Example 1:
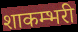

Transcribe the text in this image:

शाकम्भरी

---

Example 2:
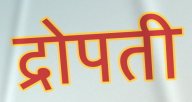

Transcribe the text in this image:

द्रोपती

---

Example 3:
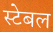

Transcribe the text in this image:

स्टेबल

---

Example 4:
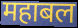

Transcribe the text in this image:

महाबल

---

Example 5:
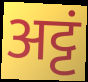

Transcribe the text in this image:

अट्टं